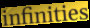
infinities